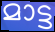
മാട്ട